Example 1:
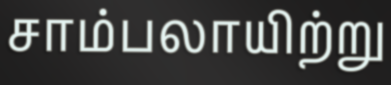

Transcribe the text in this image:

சாம்பலாயிற்று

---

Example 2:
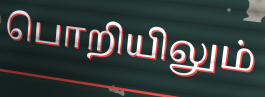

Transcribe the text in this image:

பொறியிலும்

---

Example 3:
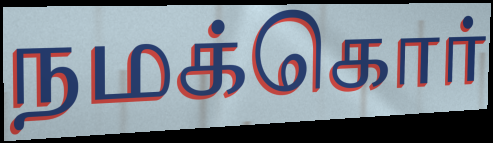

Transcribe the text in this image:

நமக்கொர்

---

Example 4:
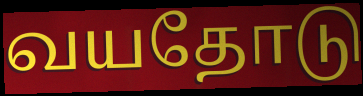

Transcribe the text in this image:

வயதோடு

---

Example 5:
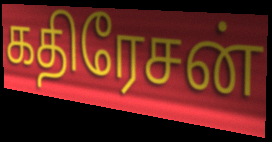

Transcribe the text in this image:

கதிரேசன்